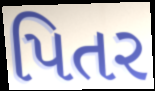
પિતર